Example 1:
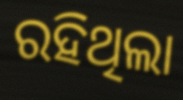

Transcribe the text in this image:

ରହିଥିଲା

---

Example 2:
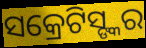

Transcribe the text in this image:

ସକ୍ରେଟିସ୍ଙ୍କର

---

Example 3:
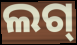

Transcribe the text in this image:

ଲଗ୍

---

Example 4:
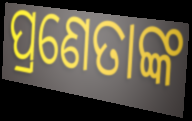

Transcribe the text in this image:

ପ୍ରଣେତାଙ୍କ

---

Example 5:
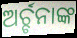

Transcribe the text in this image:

ଅର୍ଚ୍ଚନାଙ୍କ